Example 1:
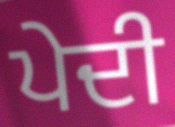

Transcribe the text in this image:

ਪੇਦੀ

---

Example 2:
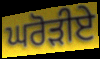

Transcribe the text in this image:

ਘਰੋੜੀਏ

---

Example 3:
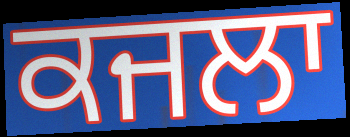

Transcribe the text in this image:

ਕਜਲਾ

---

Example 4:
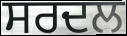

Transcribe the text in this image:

ਸਰਦਲ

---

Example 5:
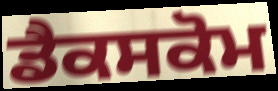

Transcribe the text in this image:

ਡੈਕਸਕੋਮ